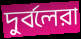
দুর্বলেরা